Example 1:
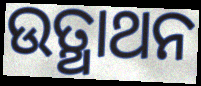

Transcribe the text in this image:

ଉତ୍ଥାଥନ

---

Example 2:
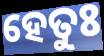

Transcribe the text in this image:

ହେତୁଃ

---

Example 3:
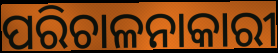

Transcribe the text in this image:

ପରିଚାଳନାକାରୀ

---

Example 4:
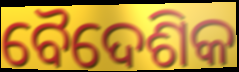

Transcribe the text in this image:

ବୈଦେଶିକ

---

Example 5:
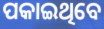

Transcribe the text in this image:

ପକାଇଥିବେ